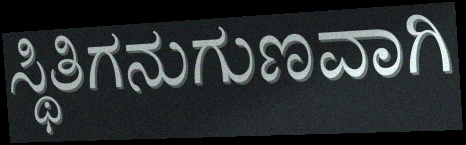
ಸ್ಥಿತಿಗನುಗುಣವಾಗಿ